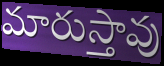
మారుస్తావు